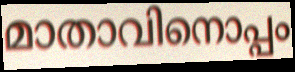
മാതാവിനൊപ്പം